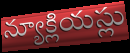
న్యూక్లియస్లు